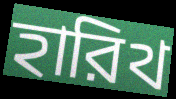
হারিথ